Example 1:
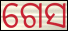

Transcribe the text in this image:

ଗେସ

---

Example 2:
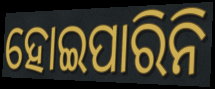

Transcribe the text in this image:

ହୋଇପାରିନି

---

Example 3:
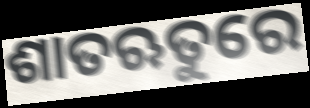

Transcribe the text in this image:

ଶାତଋତୁରେ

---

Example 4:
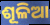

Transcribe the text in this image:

ଶୂଳିଆ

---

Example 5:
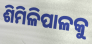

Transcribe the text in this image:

ଶିମିଳିପାଳକୁ